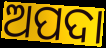
ଅପଦା